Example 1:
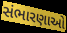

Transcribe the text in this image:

સંભારણાઓ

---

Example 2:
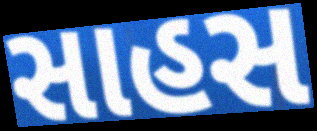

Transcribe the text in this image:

સાહસ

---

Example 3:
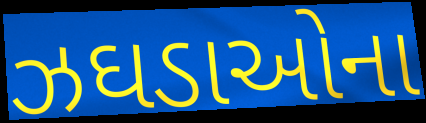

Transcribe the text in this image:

ઝઘડાઓના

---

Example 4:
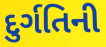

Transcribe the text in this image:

દુર્ગતિની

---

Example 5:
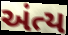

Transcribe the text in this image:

અંત્ય